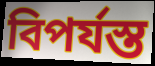
বিপর্যস্ত